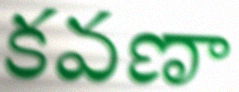
కవణా